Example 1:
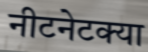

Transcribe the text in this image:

नीटनेटक्‍या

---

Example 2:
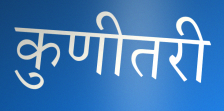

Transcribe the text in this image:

कुणीतरी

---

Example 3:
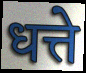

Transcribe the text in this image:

धत्ते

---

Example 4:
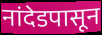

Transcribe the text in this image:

नांदेडपासून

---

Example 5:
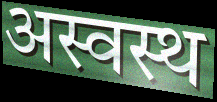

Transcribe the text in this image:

अस्वस्थ